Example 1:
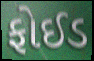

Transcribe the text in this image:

ફોઈડ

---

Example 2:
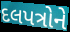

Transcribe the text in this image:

દલપત્રોને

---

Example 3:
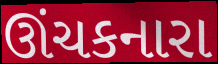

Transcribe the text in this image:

ઊંચકનારા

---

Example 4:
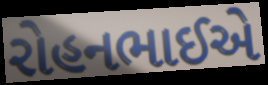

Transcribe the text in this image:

રોહનભાઈએ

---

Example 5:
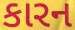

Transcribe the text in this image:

કારન